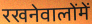
रखनेवालोंमें